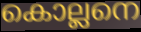
കൊല്ലനെ